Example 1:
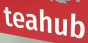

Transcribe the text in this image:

teahub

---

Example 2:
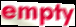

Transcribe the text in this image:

empty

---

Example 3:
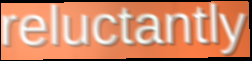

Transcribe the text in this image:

reluctantly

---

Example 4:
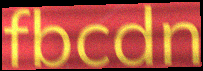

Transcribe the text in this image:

fbcdn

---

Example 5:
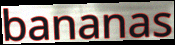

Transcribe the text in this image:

bananas